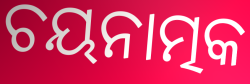
ଚୟନାତ୍ମକ